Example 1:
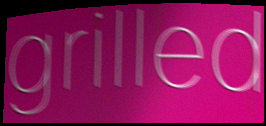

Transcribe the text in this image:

grilled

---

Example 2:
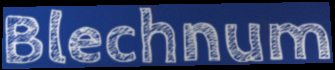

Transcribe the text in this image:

Blechnum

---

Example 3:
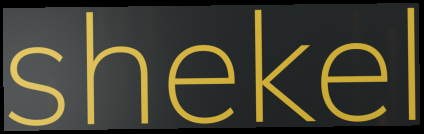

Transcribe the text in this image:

shekel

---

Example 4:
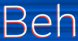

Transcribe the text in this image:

Beh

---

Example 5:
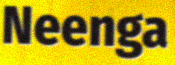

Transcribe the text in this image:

Neenga